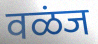
वळंज